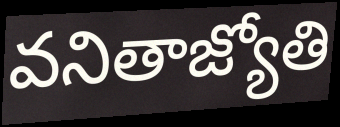
వనితాజ్యోతి